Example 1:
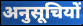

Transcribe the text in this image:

अनुसूचियों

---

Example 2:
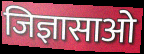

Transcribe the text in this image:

जिज्ञासाओ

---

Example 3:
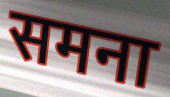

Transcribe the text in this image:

समना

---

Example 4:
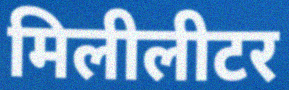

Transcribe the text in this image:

मिलीलीटर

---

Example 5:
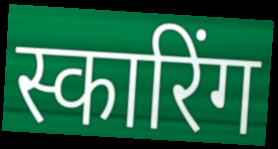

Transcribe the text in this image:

स्कारिंग